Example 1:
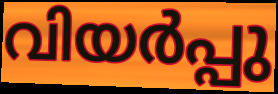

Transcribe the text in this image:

വിയർപ്പു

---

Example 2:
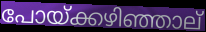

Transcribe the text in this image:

പോയ്ക്കഴിഞ്ഞാല്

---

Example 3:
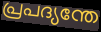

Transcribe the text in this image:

പ്രപദ്യന്തേ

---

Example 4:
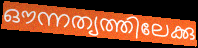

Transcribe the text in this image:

ഔന്നത്യത്തിലേക്കു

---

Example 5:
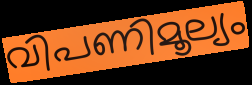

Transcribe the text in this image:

വിപണിമൂല്യം